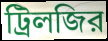
ট্রিলজির